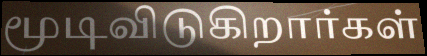
மூடிவிடுகிறார்கள்